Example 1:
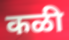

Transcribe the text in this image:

कळी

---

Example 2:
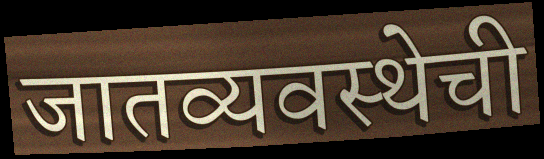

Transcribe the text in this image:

जातव्यवस्थेची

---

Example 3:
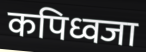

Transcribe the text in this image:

कपिध्वजा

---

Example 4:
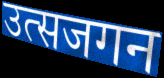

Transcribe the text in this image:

उत्सजगन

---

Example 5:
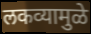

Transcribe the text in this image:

लकव्यामुळे